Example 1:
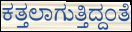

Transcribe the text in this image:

ಕತ್ತಲಾಗುತ್ತಿದ್ದಂತೆ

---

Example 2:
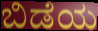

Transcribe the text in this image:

ಬಿಡೆಯ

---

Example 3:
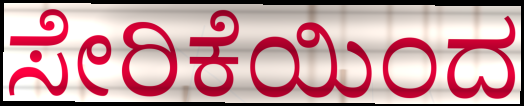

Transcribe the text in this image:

ಸೇರಿಕೆಯಿಂದ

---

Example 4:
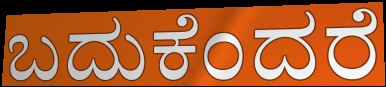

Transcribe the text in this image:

ಬದುಕೆಂದರೆ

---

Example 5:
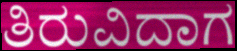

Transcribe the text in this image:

ತಿರುವಿದಾಗ